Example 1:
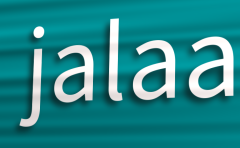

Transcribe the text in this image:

jalaa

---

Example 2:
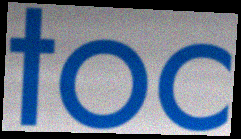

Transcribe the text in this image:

toc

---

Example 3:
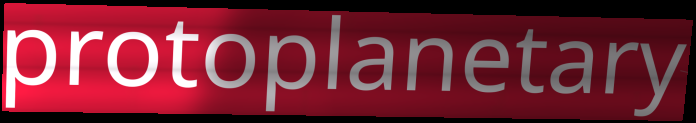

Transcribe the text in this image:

protoplanetary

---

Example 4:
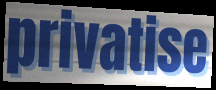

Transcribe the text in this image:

privatise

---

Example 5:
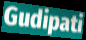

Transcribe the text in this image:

Gudipati